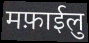
मफ़ाईलु